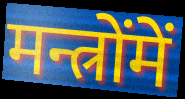
मन्त्रोंमें